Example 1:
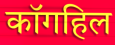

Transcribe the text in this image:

कॉगहिल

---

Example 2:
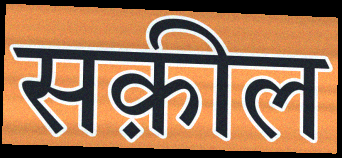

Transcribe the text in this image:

सक़ील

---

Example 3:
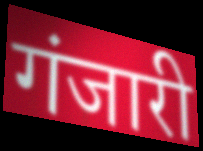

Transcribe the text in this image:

गंजारी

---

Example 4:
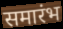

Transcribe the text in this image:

समारंभ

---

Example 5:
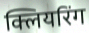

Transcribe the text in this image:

क्लियरिंग